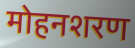
मोहनशरण